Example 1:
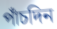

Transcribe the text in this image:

পাঁচদিন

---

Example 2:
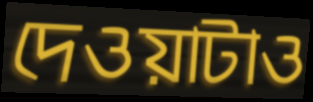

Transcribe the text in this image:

দেওয়াটাও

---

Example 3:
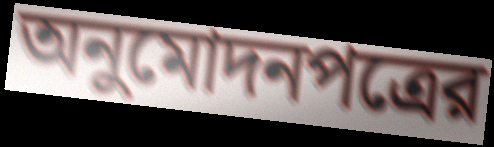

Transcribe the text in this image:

অনুমোদনপত্রের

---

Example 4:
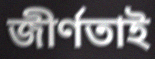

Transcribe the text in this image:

জীর্ণতাই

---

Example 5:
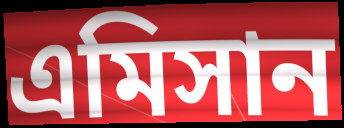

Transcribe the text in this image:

এমিসান